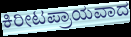
ಕಿರೀಟಪ್ರಾಯವಾದ